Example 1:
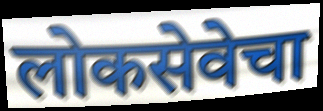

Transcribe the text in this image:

लोकसेवेचा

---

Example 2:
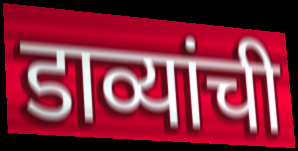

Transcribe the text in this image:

डाव्यांची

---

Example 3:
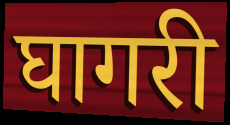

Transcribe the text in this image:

घागरी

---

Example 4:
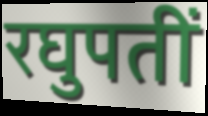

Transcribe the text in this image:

रघुपतीं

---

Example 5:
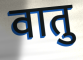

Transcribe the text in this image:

वातु